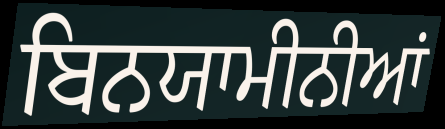
ਬਿਨਯਾਮੀਨੀਆਂ